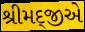
શ્રીમદ્જીએ